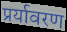
प्रर्यावरण